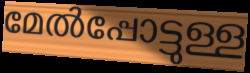
മേൽപ്പോട്ടുള്ള